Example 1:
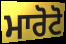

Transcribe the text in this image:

ਮਾਰੋਟੋ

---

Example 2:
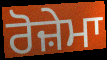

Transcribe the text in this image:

ਰੋਜ਼ੇਮਾ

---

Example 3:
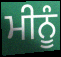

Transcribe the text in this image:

ਮੀਨੂੰ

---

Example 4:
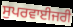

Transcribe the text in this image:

ਸੁਪਰਵਾਈਜਰੀ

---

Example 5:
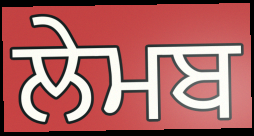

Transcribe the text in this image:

ਲੇਮਬ